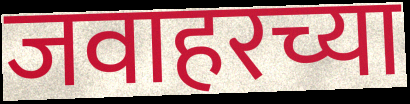
जवाहरच्या